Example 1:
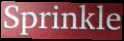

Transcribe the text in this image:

Sprinkle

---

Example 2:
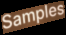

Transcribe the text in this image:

Samples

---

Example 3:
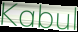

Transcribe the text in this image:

Kabul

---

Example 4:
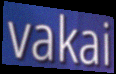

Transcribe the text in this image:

vakai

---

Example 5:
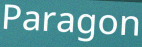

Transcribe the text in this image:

Paragon